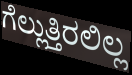
ಗೆಲ್ಲುತ್ತಿರಲಿಲ್ಲ